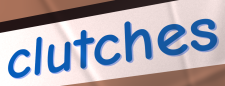
clutches